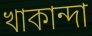
খাকান্দা